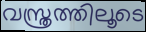
വസ്ത്രത്തിലൂടെ